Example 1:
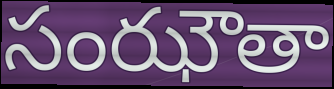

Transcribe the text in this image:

సంఝౌతా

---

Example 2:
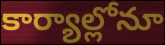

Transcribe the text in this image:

కార్యాల్లోనూ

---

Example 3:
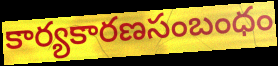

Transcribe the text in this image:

కార్యకారణసంబంధం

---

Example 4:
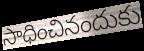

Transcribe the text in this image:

సాధించినందుకు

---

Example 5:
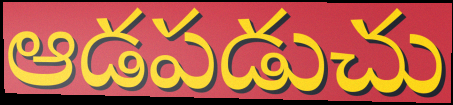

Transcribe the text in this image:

ఆడపడుచు